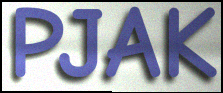
PJAK